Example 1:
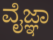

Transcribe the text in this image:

ವೈಜ್ಞಾ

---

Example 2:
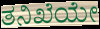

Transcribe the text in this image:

ತನಿಖೆಯೇ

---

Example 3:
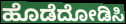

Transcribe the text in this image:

ಹೊಡೆದೋಡಿಸಿ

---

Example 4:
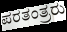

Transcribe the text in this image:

ಪರತಂತ್ರರು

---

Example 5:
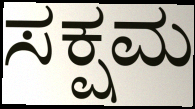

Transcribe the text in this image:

ಸಕ್ಷಮ